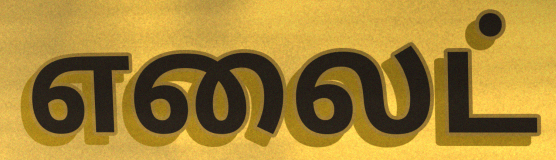
எலைட்